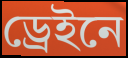
ড্রেইনে